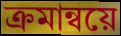
ক্ৰমান্বয়ে